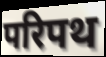
परिपथ